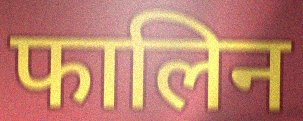
फालिन